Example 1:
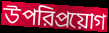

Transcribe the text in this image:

উপরিপ্রয়োগ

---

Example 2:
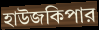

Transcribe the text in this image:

হাউজকিপার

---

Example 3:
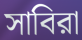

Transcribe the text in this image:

সাবিরা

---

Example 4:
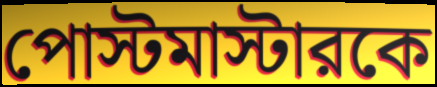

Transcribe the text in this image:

পোস্টমাস্টারকে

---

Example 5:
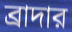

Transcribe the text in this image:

ব্রাদার